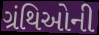
ગ્રંથિઓની